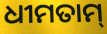
ଧୀମତାମ୍